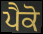
ਪੈਕੋ